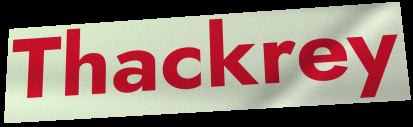
Thackrey